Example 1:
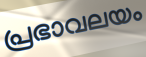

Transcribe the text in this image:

പ്രഭാവലയം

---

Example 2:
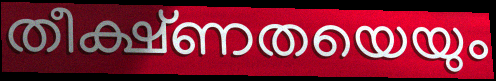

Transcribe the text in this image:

തീക്ഷ്ണതയെയും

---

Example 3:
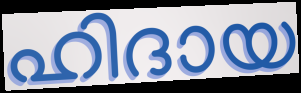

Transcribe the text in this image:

ഹിദായ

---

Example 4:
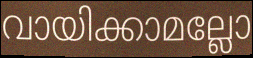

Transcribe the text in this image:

വായിക്കാമല്ലോ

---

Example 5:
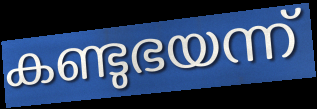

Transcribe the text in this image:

കണ്ടുഭയന്ന്